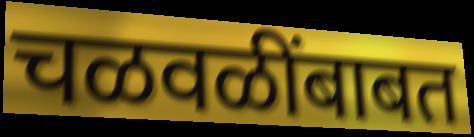
चळवळींबाबत